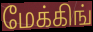
மேக்கிங்